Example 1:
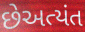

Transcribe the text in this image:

છેઅત્યંત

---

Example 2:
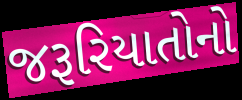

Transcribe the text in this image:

જરૂરિયાતોનો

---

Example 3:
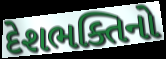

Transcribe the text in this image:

દેશભક્તિનો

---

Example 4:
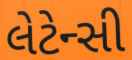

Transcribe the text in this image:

લેટેન્સી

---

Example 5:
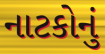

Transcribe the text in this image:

નાટકોનું